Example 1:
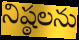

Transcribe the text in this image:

నిష్ఠలను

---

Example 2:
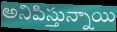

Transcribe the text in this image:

అనిపిస్తున్నాయి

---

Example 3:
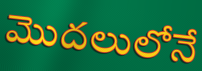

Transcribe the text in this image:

మొదలులోనే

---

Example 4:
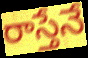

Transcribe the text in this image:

రాస్తేనే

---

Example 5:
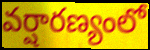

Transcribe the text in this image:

వర్షారణ్యంలో